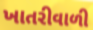
ખાતરીવાળી